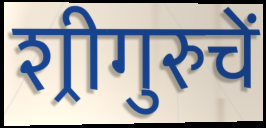
श्रीगुरुचें